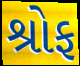
શ્રોફ